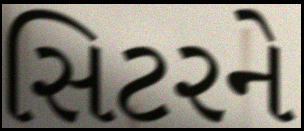
સિટરને